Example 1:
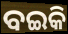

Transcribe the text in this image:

ବଇକି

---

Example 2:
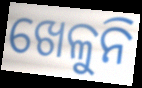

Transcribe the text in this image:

ଖେଳୁନି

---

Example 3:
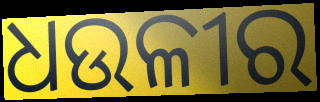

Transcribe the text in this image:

ଧଉଳୀର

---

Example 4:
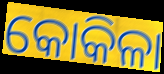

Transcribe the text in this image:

କୋକିଳା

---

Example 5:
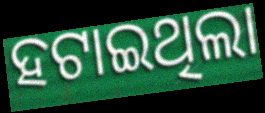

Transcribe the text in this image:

ହଟାଇଥିଲା